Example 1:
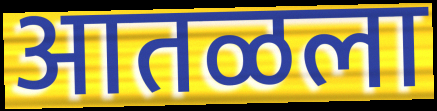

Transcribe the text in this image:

आतळला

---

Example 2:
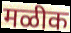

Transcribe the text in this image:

मळीक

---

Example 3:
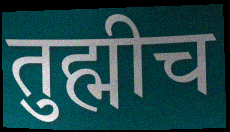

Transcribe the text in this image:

तुह्मीच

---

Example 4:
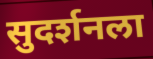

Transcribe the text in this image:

सुदर्शनला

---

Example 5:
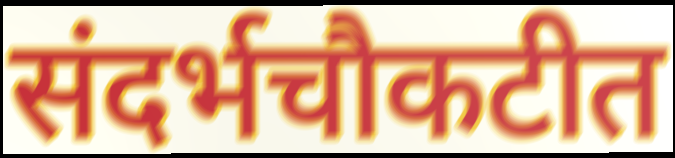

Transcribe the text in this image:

संदर्भचौकटीत